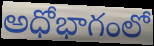
అధోభాగంలో